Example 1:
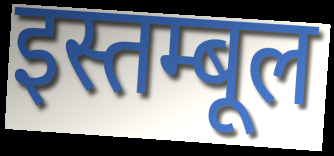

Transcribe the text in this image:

इस्तम्बूल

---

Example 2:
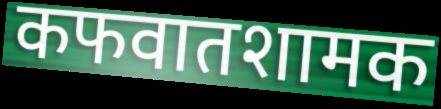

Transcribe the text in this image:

कफवातशामक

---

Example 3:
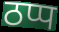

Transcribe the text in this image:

ठप्प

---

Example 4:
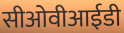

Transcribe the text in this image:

सीओवीआईडी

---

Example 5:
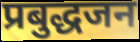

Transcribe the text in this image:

प्रबुद्धजन